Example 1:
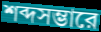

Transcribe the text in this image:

শব্দসম্ভারে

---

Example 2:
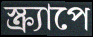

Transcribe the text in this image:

স্ক্র্যাপে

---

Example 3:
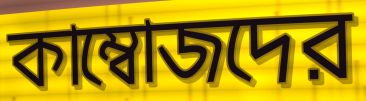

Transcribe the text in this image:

কাম্বোজদের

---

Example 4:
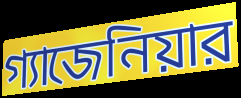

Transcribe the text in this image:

গ্যাজেনিয়ার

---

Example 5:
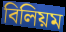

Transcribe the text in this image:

বিলিয়ম